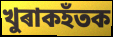
খুৰাকহঁতক